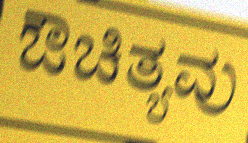
ಔಚಿತ್ಯವು